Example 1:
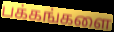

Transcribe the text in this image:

பக்கங்களை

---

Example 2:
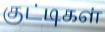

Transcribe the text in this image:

குட்டிகள்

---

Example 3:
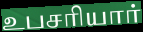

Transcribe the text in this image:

உபசரியார்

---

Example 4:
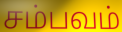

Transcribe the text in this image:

சம்பவம்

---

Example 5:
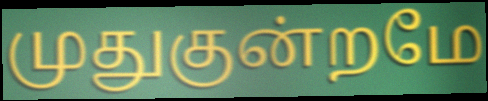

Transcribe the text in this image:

முதுகுன்றமே